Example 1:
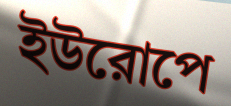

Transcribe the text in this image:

ইউরোপে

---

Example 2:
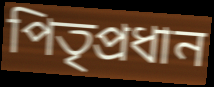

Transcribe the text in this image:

পিতৃপ্রধান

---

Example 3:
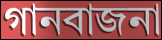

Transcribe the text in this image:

গানবাজনা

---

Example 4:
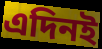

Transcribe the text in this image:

এদিনই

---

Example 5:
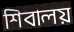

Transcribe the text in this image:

শিবালয়